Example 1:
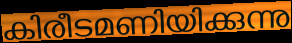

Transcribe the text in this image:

കിരീടമണിയിക്കുന്നു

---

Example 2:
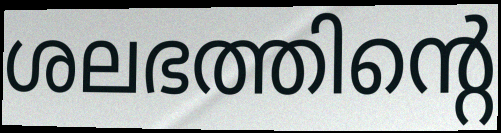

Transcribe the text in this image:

ശലഭത്തിന്റെ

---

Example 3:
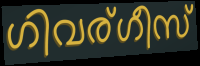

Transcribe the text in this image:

ഗിവര്ഗീസ്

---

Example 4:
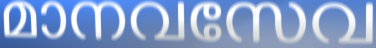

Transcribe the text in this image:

മാനവസേവ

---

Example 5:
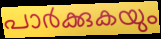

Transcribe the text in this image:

പാർക്കുകയും